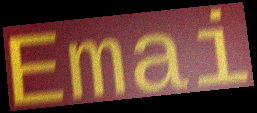
Emai